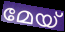
മേയ്